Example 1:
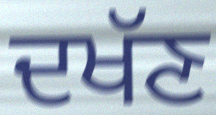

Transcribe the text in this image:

ਦਖੱਣ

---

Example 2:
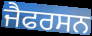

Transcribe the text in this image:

ਜੈਫਰਸਨ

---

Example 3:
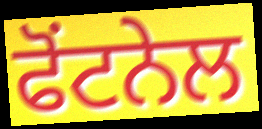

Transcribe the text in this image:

ਫੋਂਟਨੇਲ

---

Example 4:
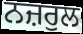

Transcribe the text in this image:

ਨਜ਼ਰੁਲ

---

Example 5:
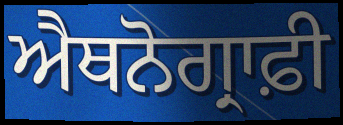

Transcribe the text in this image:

ਐਥਨੋਗ੍ਰਾਫ਼ੀ